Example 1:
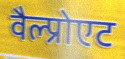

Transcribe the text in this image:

वैल्प्रोएट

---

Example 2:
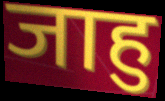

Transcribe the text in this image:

जाहु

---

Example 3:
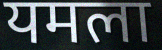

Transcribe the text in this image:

यमला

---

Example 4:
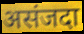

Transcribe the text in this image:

असंजदा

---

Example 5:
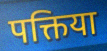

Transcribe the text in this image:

पक्तिया